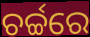
ଚର୍ଚ୍ଚରେ